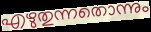
എഴുതുന്നതൊന്നും